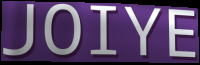
JOIYE